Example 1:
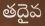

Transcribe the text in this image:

తదైవ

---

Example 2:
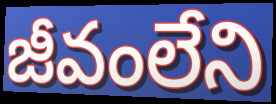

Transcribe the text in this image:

జీవంలేని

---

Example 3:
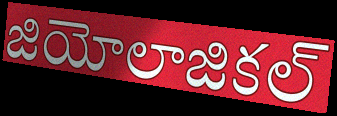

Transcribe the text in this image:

జియోలాజికల్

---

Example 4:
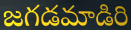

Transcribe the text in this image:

జగడమాడిరి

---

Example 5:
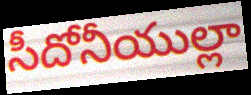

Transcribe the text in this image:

సీదోనీయుల్లా